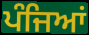
ਪੰਜਿਆਂ